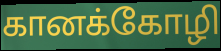
கானக்கோழி